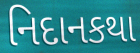
નિદાનકથા